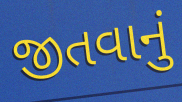
જીતવાનું